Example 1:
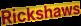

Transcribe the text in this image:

Rickshaws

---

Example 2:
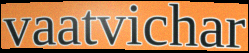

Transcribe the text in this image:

vaatvichar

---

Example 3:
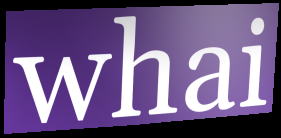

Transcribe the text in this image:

whai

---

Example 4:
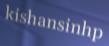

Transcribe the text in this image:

kishansinhp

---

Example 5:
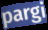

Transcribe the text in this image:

pargi